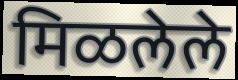
मिळलेले